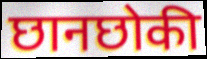
छानछोकी